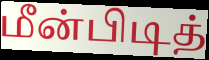
மீன்பிடித்